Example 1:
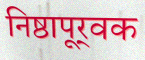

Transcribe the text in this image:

निष्ठापूर्वक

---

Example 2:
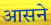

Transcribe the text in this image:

आसने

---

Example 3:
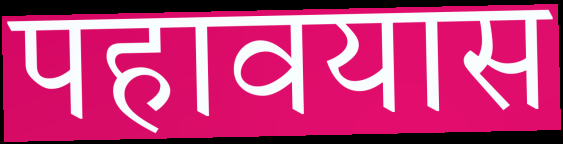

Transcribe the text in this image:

पहावयास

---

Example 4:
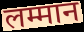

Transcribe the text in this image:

लम्मान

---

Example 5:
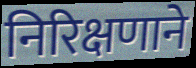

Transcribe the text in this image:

निरिक्षणाने